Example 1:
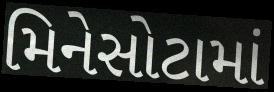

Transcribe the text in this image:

મિનેસોટામાં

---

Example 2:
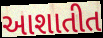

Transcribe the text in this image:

આશાતીત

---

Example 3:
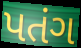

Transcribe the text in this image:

પતંગ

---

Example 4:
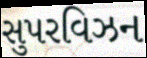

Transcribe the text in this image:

સુપરવિઝન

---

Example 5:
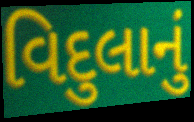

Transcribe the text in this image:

વિદુલાનું